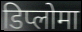
डिप्लोमा